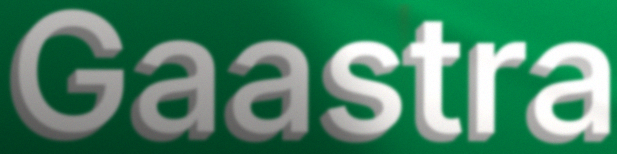
Gaastra